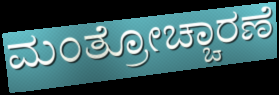
ಮಂತ್ರೋಚ್ಚಾರಣೆ